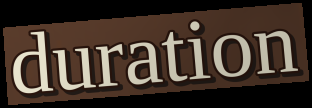
duration